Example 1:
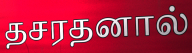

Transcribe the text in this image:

தசரதனால்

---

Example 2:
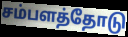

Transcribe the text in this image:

சம்பளத்தோடு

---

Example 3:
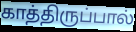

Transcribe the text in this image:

காத்திருப்பால்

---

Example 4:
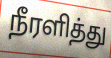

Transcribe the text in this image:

நீரளித்து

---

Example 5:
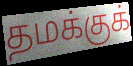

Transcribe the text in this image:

தமக்குக்